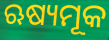
ଋଷ୍ୟମୂକ